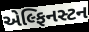
એલ્ફિનસ્ટન